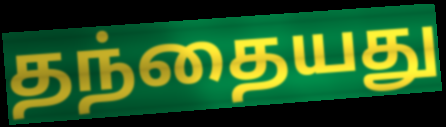
தந்தையது